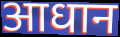
आधान